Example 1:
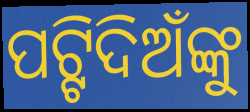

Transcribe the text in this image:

ପଟ୍ଟିଦିଅଁଙ୍କୁ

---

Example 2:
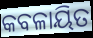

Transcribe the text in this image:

କବଳାୟିତ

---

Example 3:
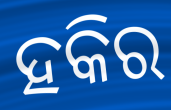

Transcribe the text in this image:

ହକିର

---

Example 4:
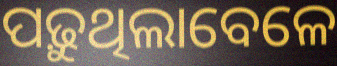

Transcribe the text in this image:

ପଢ଼ୁଥିଲାବେଳେ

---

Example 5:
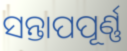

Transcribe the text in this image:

ସନ୍ତାପପୂର୍ଣ୍ଣ